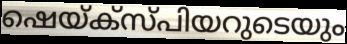
ഷെയ്ക്സ്പിയറുടെയും